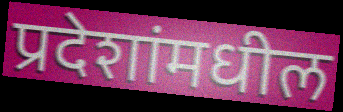
प्रदेशांमधील